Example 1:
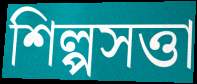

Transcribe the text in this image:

শিল্পসত্তা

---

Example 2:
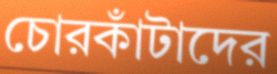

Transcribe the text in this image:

চোরকাঁটাদের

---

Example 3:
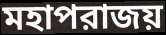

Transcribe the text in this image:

মহাপরাজয়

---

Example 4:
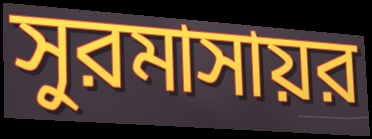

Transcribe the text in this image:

সুরমাসায়র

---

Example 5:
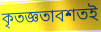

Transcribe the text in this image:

কৃতজ্ঞতাবশতই